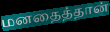
மனதைத்தான்